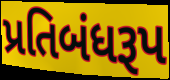
પ્રતિબંધરૂપ